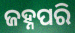
ଜହ୍ନପରି